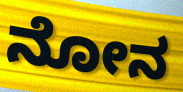
ನೋನ